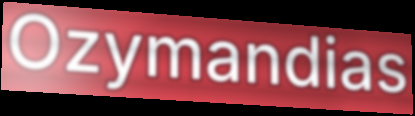
Ozymandias